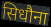
सिधौना